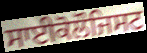
ਸਾਈਕੋਲੌਜਿਸਟ